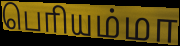
பெரியம்மா